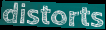
distorts